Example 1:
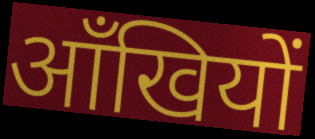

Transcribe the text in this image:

आँखियों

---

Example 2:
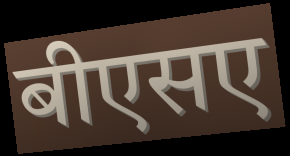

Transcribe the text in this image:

बीएसए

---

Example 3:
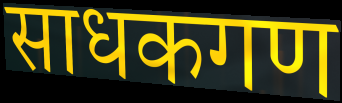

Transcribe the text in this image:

साधकगण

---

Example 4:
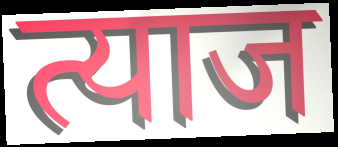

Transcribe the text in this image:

त्याज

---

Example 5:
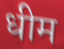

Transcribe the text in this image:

धीम